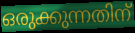
ഒരുക്കുന്നതിന്